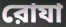
রোযা